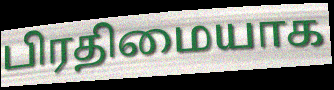
பிரதிமையாக